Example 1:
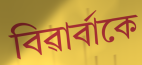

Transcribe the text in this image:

বিৱাৰ্বাকে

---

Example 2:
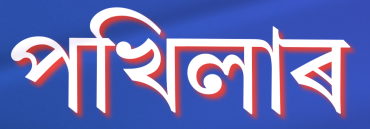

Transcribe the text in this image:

পখিলাৰ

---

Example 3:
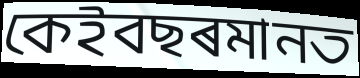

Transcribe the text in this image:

কেইবছৰমানত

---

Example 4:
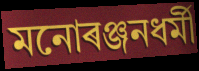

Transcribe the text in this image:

মনোৰঞ্জনধৰ্মী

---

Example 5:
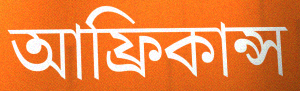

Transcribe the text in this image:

আফ্ৰিকান্স